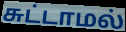
சுட்டாமல்